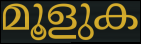
മൂളുക